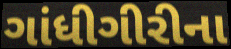
ગાંધીગીરીના